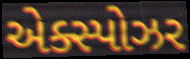
એક્સ્પોઝર